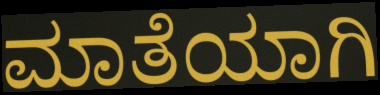
ಮಾತೆಯಾಗಿ